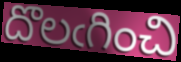
దొలఁగించి